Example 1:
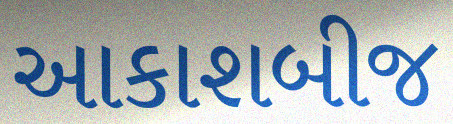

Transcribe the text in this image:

આકાશબીજ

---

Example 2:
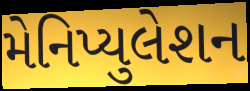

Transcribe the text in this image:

મેનિપ્યુલેશન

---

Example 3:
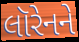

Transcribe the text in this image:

લૉરેનને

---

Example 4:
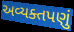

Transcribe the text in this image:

અવ્યક્તપણું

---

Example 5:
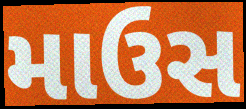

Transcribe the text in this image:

માઉસ